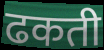
ढकती